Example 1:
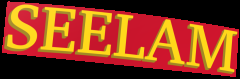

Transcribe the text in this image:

SEELAM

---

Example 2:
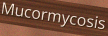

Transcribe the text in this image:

Mucormycosis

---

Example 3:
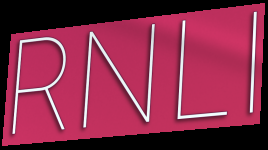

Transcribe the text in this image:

RNLI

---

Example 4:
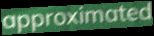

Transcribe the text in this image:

approximated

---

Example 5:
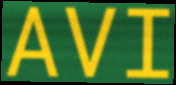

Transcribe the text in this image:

AVI